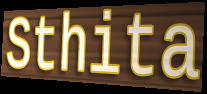
Sthita